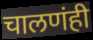
चालणंही